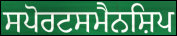
ਸਪੋਰਟਸਮੈਨਸ਼ਿਪ